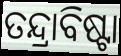
ତନ୍ଦ୍ରାବିଷ୍ଟା